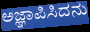
ಅಜ್ಞಾಪಿಸಿದನು